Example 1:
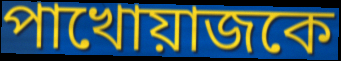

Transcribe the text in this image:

পাখোয়াজকে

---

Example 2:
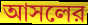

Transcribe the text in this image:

আসলের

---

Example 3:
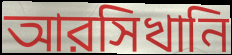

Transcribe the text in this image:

আরসিখানি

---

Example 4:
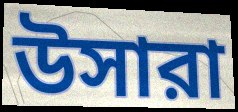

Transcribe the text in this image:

উসারা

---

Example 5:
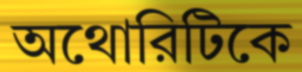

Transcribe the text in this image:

অথোরিটিকে